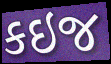
કઇજ